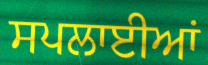
ਸਪਲਾਈਆਂ